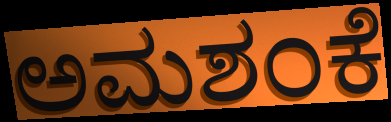
ಅಮಶಂಕೆ